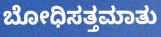
ಬೋಧಿಸತ್ತಮಾತು